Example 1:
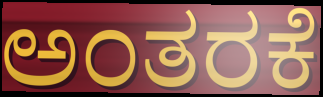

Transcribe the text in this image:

ಅಂತರಕೆ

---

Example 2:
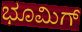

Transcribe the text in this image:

ಭೂಮಿಗ್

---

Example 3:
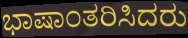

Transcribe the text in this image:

ಭಾಷಾಂತರಿಸಿದರು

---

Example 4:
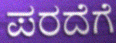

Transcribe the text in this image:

ಪರದೆಗೆ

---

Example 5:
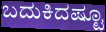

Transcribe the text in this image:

ಬದುಕಿದಷ್ಟೂ